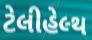
ટેલીહેલ્થ